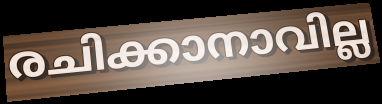
രചിക്കാനാവില്ല